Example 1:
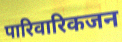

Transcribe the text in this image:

पारिवारिकजन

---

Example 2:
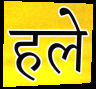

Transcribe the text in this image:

हले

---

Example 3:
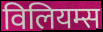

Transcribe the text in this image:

विलियम्‍स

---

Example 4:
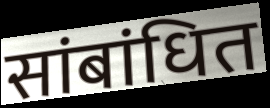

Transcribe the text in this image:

सांबांधित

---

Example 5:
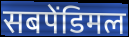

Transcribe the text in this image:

सबपेंडिमल